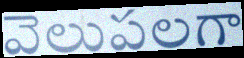
వెలుపలగా